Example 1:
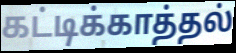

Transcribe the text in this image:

கட்டிக்காத்தல்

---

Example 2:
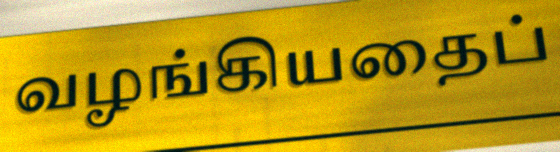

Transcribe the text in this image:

வழங்கியதைப்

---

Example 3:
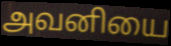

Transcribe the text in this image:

அவனியை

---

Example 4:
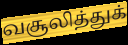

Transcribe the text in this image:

வசூலித்துக்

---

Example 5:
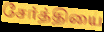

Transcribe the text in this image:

சேர்த்தியை